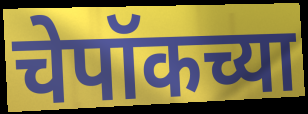
चेपॉकच्या